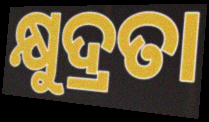
କ୍ଷୁଦ୍ରତା